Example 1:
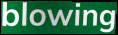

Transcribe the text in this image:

blowing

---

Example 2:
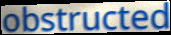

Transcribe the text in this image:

obstructed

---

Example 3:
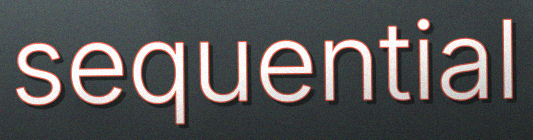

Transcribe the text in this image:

sequential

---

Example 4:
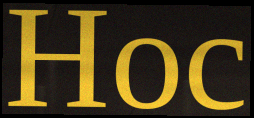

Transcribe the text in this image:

Hoc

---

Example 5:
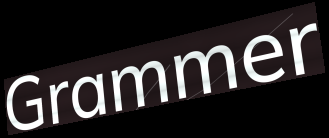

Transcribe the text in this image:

Grammer